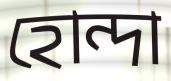
হোন্দা